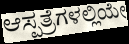
ಆಸ್ಪತ್ರೆಗಳಲ್ಲಿಯೇ